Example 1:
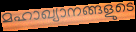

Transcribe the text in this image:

മഹാഖ്യാനങ്ങളുടെ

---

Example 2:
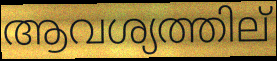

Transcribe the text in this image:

ആവശ്യത്തില്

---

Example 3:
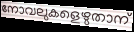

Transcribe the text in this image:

നോവലുകളെഴുതാന്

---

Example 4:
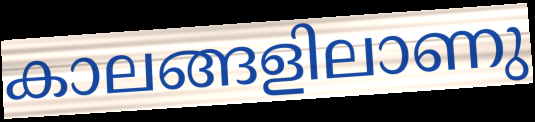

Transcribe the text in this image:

കാലങ്ങളിലാണു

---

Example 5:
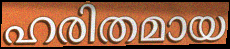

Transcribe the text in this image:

ഹരിതമായ